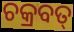
ଚକ୍ରବତ୍